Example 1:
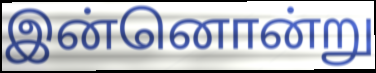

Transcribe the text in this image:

இன்னொன்று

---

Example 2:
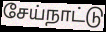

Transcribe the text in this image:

சேய்நாட்டு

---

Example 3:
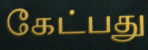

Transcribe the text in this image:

கேட்பது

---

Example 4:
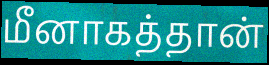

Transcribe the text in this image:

மீனாகத்தான்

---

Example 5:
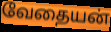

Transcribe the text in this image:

வேதையன்